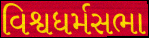
વિશ્વધર્મસભા